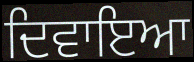
ਦਿਵਾਇਆ